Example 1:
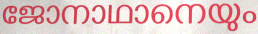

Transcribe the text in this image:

ജോനാഥാനെയും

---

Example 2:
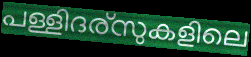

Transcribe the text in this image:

പള്ളിദര്സുകളിലെ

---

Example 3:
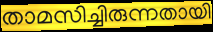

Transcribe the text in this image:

താമസിച്ചിരുന്നതായി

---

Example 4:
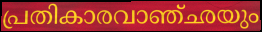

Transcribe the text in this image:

പ്രതികാരവാഞ്ഛയും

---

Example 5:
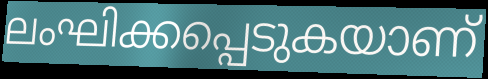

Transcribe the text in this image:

ലംഘിക്കപ്പെടുകയാണ്